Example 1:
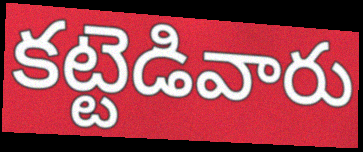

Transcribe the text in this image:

కట్టెడివారు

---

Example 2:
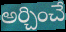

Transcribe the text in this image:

అర్చించే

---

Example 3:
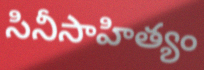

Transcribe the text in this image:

సినీసాహిత్యం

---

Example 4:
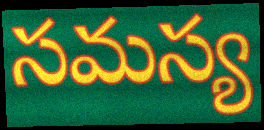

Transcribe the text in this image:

సమస్య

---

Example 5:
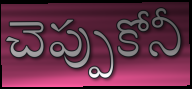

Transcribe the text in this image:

చెప్పుకోనీ